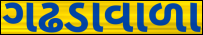
ગઢડાવાળા